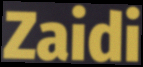
Zaidi